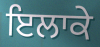
ਇਲਾਕੇ